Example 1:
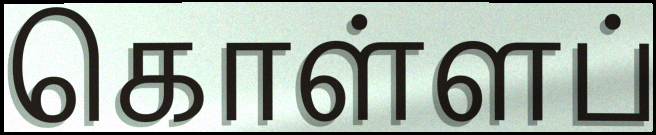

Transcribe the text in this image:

கொள்ளப்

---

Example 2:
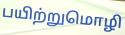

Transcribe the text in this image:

பயிற்றுமொழி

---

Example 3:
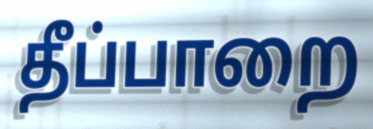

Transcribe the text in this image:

தீப்பாறை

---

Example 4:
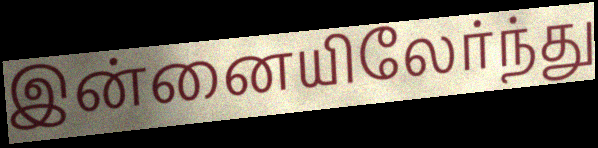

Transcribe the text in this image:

இன்னையிலேர்ந்து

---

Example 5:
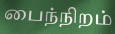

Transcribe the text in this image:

பைந்நிறம்